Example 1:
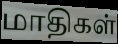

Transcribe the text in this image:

மாதிகள்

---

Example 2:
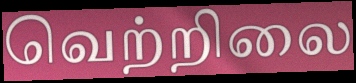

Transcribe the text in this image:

வெற்றிலை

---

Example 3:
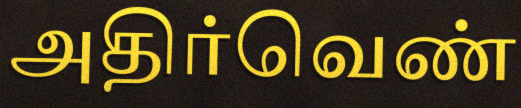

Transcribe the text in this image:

அதிர்வெண்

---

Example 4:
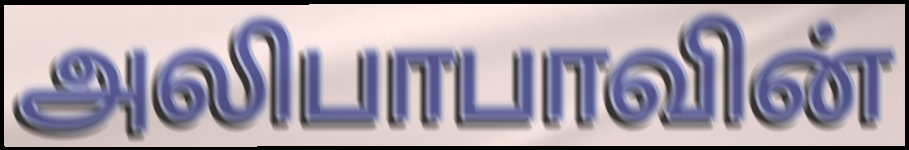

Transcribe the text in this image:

அலிபாபாவின்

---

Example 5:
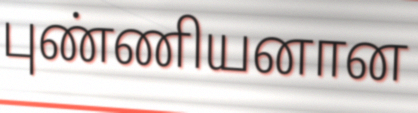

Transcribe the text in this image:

புண்ணியனான